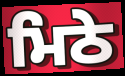
ਮਿਠੇ